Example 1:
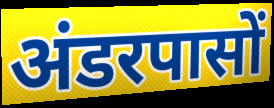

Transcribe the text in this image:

अंडरपासों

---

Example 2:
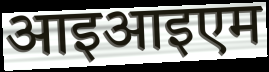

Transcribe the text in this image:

आइआइएम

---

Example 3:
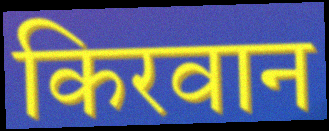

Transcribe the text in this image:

किरवान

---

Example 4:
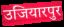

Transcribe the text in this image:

उजियारपुर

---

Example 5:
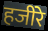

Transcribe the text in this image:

हजीरे